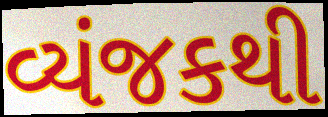
વ્યંજકથી